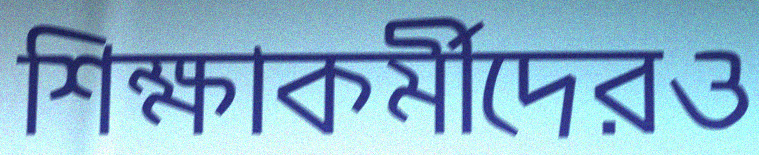
শিক্ষাকর্মীদেরও